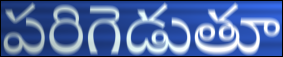
పరిగెడుతూ